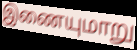
இணையுமாறு